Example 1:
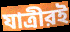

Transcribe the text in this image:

যাত্রীরই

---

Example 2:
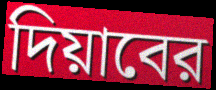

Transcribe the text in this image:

দিয়াবের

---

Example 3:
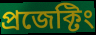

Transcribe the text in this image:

প্রজেক্টিং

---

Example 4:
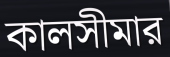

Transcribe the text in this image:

কালসীমার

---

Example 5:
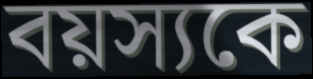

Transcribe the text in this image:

বয়স্যকে